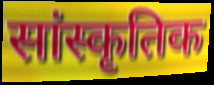
सांस्कृतिक